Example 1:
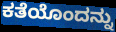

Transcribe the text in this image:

ಕತೆಯೊಂದನ್ನು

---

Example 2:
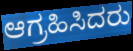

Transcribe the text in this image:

ಆಗ್ರಹಿಸಿದರು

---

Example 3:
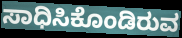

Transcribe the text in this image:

ಸಾಧಿಸಿಕೊಂಡಿರುವ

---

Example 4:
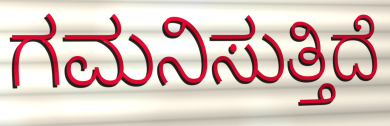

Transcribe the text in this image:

ಗಮನಿಸುತ್ತಿದೆ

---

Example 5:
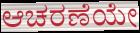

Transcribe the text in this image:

ಆಚರಣೆಯೇ